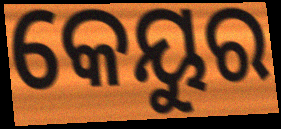
କେୟୁର